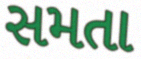
સમતા